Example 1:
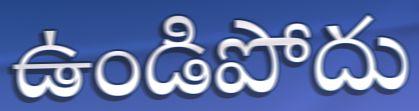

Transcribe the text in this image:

ఉండిపోదు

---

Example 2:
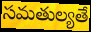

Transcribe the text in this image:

సమతుల్యతే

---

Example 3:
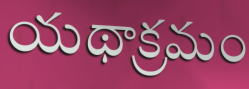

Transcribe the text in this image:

యథాక్రమం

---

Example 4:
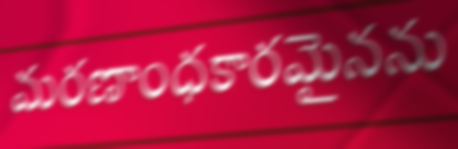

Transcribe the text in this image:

మరణాంధకారమైనను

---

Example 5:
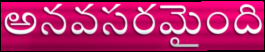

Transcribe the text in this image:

అనవసరమైంది